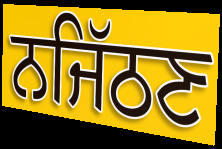
ਨਜਿੱਠਣ